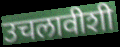
उचलावीशी